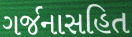
ગર્જનાસહિત